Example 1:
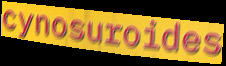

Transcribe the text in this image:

cynosuroides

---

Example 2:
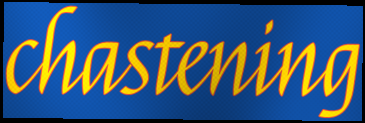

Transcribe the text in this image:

chastening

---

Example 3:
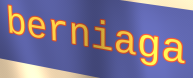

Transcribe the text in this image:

berniaga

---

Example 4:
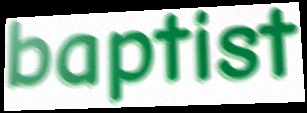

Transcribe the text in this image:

baptist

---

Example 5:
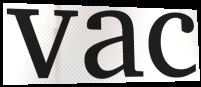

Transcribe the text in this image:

vac